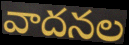
వాదనల